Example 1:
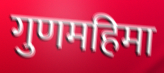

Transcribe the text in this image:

गुणमहिमा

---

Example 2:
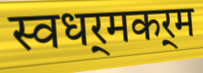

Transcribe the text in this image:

स्वधर्मकर्म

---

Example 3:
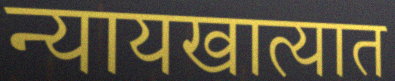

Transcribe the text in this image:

न्यायखात्यात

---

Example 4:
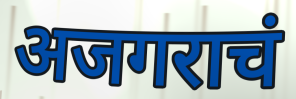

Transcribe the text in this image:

अजगराचं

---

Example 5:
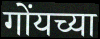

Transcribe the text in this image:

गोंयच्या